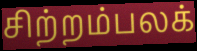
சிற்றம்பலக்